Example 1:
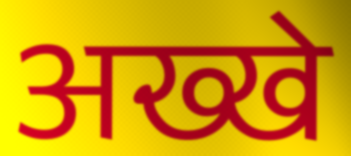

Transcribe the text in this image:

अख्खे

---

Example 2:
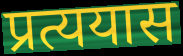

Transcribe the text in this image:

प्रत्ययास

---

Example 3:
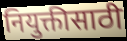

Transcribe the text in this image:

नियुक्तीसाठी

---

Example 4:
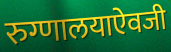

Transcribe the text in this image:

रुग्णालयाऐवजी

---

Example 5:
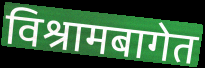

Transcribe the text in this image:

विश्रामबागेत